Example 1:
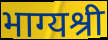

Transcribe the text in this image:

भाग्यश्री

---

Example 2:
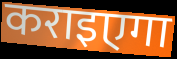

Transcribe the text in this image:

कराइएगा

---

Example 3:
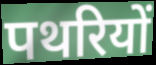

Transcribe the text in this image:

पथरियों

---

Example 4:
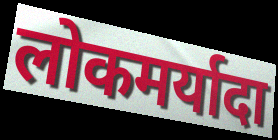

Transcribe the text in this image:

लोकमर्यादा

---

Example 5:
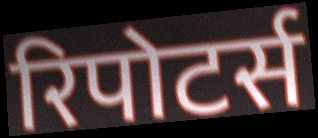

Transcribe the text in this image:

रिपोटर्स